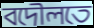
বদৌলতে